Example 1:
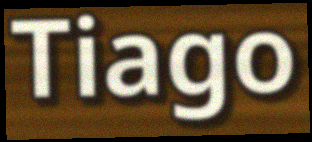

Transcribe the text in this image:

Tiago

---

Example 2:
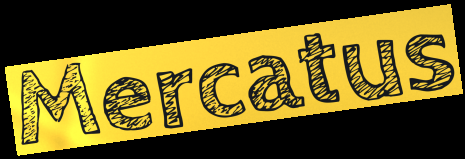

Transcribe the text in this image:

Mercatus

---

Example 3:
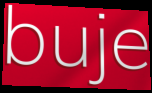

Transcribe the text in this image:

buje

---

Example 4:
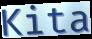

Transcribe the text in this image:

Kita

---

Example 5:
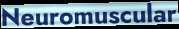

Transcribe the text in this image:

Neuromuscular